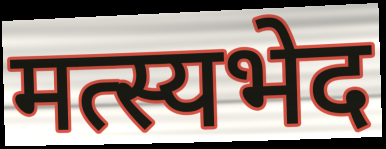
मत्स्यभेद